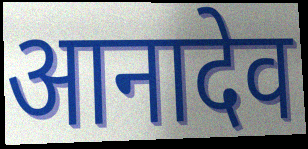
आनादेव